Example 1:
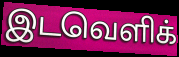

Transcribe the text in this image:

இடவெளிக்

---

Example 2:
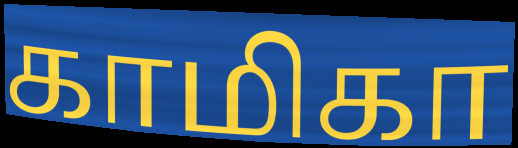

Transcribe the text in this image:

காமிகா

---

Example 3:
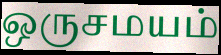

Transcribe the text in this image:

ஒருசமயம்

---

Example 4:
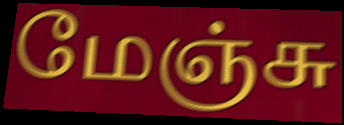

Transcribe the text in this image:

மேஞ்சு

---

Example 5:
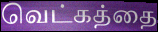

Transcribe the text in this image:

வெட்கத்தை